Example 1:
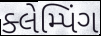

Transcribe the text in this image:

ક્લેમ્પિંગ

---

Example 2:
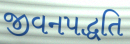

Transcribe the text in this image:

જીવનપદ્ધતિ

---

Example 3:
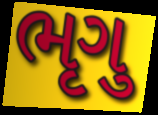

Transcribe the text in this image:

ભૃગુ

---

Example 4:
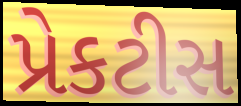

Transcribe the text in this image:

પ્રેકટીસ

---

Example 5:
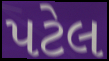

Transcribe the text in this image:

પટેલ